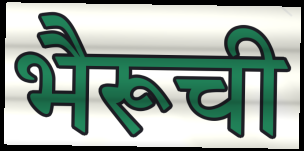
भैरूची